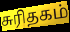
சுரிதகம்